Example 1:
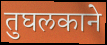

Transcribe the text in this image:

तुघलकाने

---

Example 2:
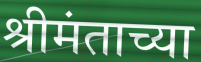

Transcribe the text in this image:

श्रीमंताच्या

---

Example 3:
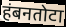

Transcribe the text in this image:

हंबनतोटा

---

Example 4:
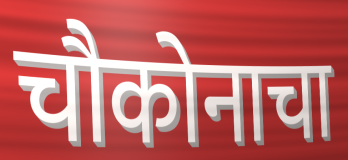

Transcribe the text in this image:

चौकोनाचा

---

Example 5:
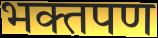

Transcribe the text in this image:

भक्तपण